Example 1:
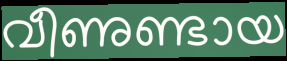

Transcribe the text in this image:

വീണുണ്ടായ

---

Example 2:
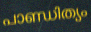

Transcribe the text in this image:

പാണ്ഡിത്യം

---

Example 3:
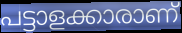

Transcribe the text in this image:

പട്ടാളക്കാരാണ്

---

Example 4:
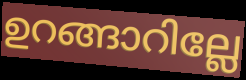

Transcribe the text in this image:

ഉറങ്ങാറില്ലേ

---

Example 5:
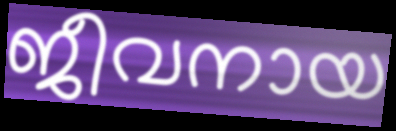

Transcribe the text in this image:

ജീവനായ